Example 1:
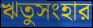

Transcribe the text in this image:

ঋতুসংহার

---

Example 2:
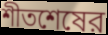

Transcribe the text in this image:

শীতশেষের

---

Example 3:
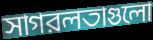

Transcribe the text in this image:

সাগরলতাগুলো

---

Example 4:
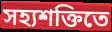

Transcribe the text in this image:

সহ্যশক্তিতে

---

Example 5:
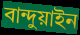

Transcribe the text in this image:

বান্দুয়াইন